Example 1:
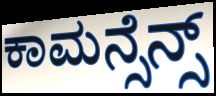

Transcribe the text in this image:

ಕಾಮನ್ಸೆನ್ಸ್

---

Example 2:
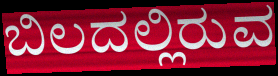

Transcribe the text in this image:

ಬಿಲದಲ್ಲಿರುವ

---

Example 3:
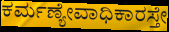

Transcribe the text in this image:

ಕರ್ಮಣ್ಯೇವಾಧಿಕಾರಸ್ತೇ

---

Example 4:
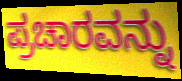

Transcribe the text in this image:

ಪ್ರಚಾರವನ್ನು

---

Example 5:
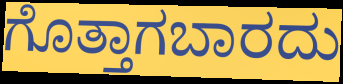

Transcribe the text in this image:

ಗೊತ್ತಾಗಬಾರದು